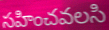
సహించవలసి